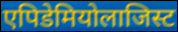
एपिडेमियोलाजिस्ट